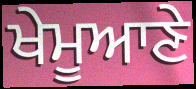
ਖੇਮੂਆਣੇ